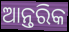
ଆନ୍ତରିକ